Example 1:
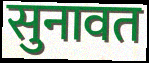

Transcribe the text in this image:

सुनावत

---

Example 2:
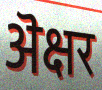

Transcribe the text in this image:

ऄक्षर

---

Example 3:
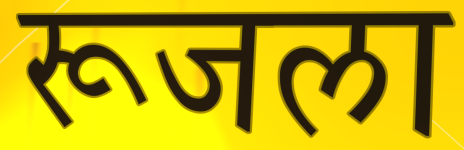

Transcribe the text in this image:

रूजला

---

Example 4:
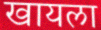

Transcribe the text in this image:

खायला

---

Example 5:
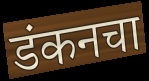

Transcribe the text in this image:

डंकनचा